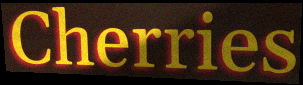
Cherries